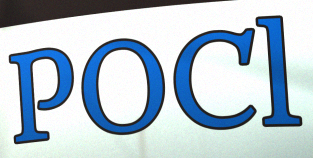
POCl